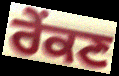
ਰੇੰਕਣ